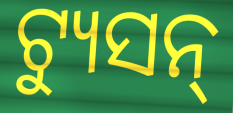
ଟ୍ୟୁସନ୍